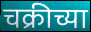
चक्रीच्या